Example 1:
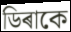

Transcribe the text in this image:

ডিৰাকে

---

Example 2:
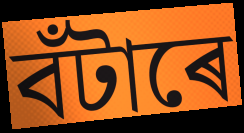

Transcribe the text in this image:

বঁটাৰে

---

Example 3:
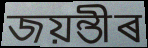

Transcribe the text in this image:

জয়ন্তীৰ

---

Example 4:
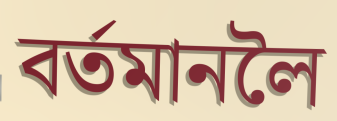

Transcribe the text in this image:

বৰ্তমানলৈ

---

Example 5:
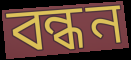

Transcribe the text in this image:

বন্ধন